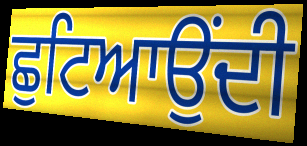
ਛੁਟਿਆਉਂਦੀ